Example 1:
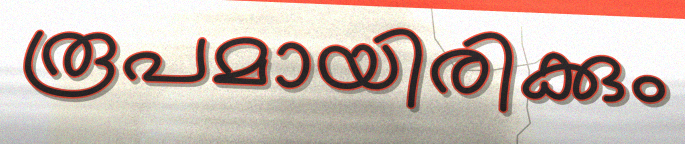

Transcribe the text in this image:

രൂപമായിരിക്കും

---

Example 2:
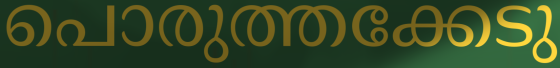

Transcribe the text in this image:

പൊരുത്തക്കേടു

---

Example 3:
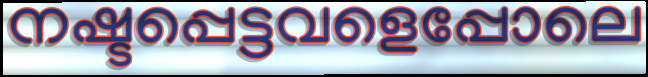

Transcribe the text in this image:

നഷ്ടപ്പെട്ടവളെപ്പോലെ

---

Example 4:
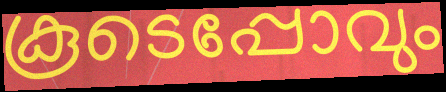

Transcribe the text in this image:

കൂടെപ്പോവും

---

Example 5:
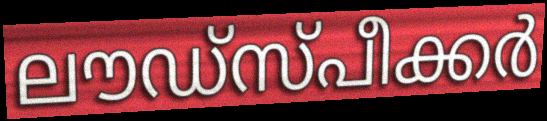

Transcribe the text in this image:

ലൗഡ്സ്പീക്കർ